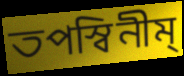
তপস্বিনীম্